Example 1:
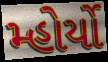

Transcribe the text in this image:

મ્હોર્યો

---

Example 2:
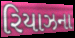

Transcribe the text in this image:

રિયાઝના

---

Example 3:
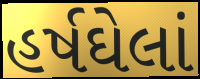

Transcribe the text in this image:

હર્ષઘેલાં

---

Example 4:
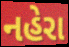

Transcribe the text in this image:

નહેરા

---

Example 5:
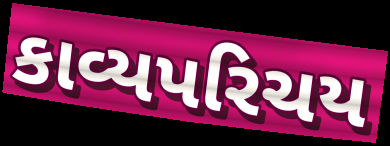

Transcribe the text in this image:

કાવ્યપરિચય